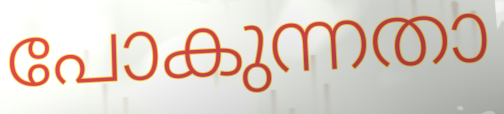
പോകുന്നതാ